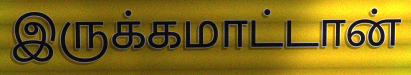
இருக்கமாட்டான்